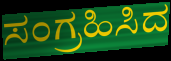
ಸಂಗ್ರಹಿಸಿದ